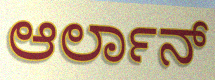
ಆರ್ಲಾನ್